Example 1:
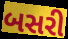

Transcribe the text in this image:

બસરી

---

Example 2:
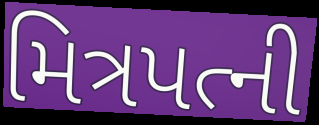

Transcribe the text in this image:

મિત્રપત્ની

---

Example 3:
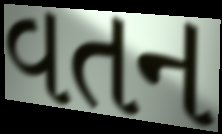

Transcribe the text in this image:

વતન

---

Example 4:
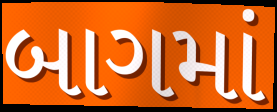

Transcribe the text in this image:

બાગમાં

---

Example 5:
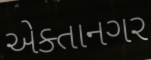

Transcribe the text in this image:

એક્તાનગર